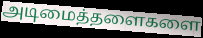
அடிமைத்தளைகளை